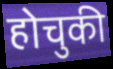
होचुकी